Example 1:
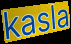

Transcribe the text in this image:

kasla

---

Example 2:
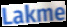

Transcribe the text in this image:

Lakme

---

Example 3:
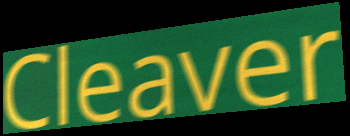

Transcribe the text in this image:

Cleaver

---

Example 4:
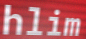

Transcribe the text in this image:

hlim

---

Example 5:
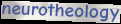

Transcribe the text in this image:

neurotheology